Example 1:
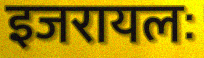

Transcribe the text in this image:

इजरायलः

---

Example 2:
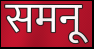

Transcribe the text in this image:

समनू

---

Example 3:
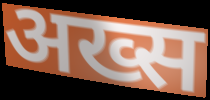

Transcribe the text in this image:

अख्स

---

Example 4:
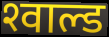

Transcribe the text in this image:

श्वाल्ड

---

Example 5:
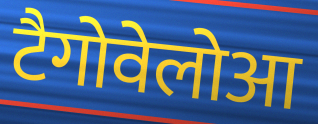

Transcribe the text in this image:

टैगोवेलोआ